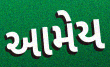
આમેય